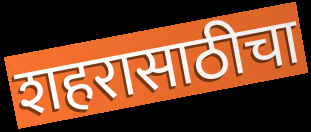
शहरासाठीचा